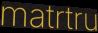
matrtru